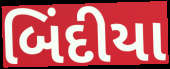
બિંદીયા